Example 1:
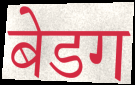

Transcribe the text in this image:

बेडग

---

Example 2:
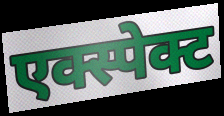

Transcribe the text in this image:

एक्स्पेक्ट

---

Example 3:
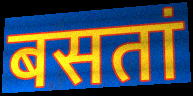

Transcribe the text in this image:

बसतां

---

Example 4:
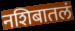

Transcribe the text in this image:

नशिबातलं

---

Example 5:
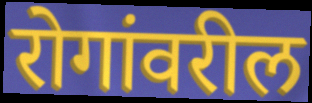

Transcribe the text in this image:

रोगांवरील